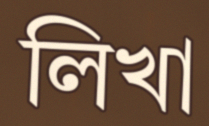
লিখা